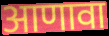
आणावा